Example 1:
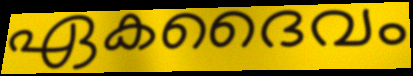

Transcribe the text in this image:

ഏകദൈവം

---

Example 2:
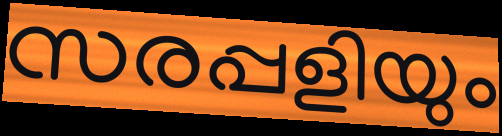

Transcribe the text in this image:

സരപ്പളിയും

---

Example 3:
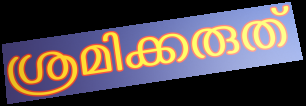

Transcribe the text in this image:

ശ്രമിക്കരുത്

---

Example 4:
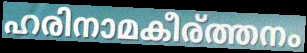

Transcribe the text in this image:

ഹരിനാമകീര്ത്തനം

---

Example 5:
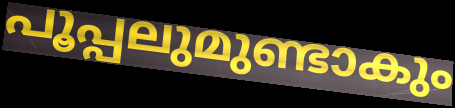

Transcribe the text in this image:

പൂപ്പലുമുണ്ടാകും